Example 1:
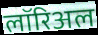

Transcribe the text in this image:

लॉरिअल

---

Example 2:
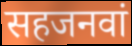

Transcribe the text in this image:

सहजनवां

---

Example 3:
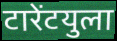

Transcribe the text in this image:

टारेंटयुला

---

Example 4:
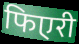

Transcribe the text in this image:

फिएरी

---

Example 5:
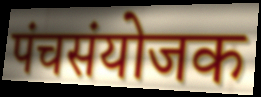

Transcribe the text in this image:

पंचसंयोजक